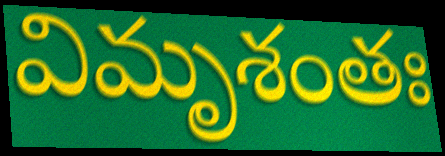
విమృశంతః